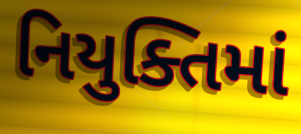
નિયુક્તિમાં